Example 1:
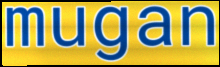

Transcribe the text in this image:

mugan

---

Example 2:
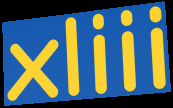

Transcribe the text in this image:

xliii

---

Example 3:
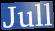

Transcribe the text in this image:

Jull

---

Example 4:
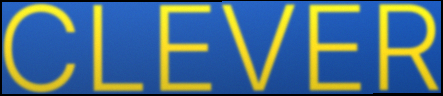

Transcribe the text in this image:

CLEVER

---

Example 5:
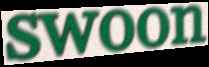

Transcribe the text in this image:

swoon